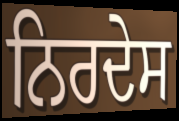
ਨਿਰਦੇਸ